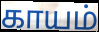
காயம்